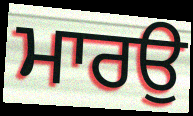
ਮਾਰਉ